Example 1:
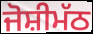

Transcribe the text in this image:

ਜੋਸ਼ੀਮੱਠ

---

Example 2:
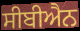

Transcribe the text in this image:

ਸੀਬੀਐਨ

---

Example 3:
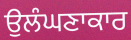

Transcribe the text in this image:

ਉਲੰਘਣਾਕਾਰ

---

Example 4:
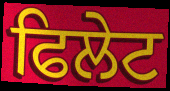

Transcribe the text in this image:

ਫਿਲੇਟ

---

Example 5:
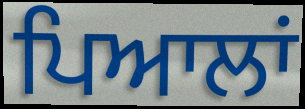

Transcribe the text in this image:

ਪਿਆਲਾਂ